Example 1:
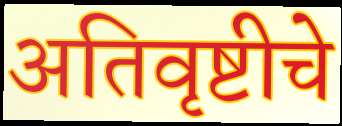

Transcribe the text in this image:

अतिवृष्टीचे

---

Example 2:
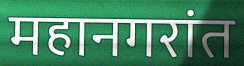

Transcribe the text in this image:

महानगरांत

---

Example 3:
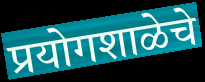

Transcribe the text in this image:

प्रयोगशाळेचे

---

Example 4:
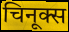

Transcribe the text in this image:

चिनूक्स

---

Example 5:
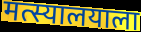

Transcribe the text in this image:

मत्स्यालयाला